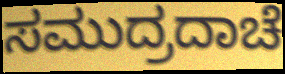
ಸಮುದ್ರದಾಚೆ